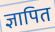
ज्ञापित